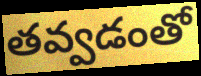
తవ్వడంతో